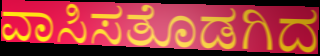
ವಾಸಿಸತೊಡಗಿದ